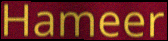
Hameer